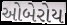
ઓબેરોય